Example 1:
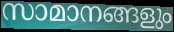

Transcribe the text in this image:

സാമാനങ്ങളും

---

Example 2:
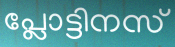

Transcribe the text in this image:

പ്ലോട്ടിനസ്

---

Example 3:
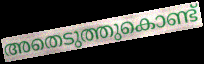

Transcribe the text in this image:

അതെടുത്തുകൊണ്ട്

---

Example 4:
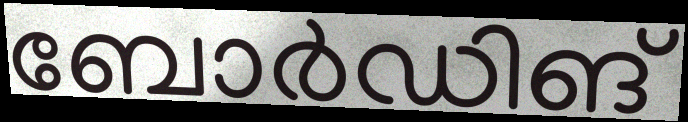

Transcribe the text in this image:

ബോർഡിങ്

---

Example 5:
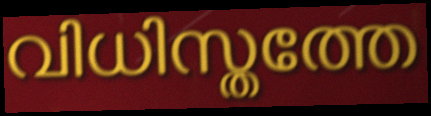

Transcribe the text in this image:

വിധിസ്തത്തേ